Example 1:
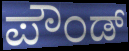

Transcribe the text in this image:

ಪೌಂಡ್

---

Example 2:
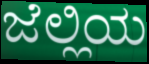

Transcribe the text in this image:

ಜೆಲ್ಲಿಯ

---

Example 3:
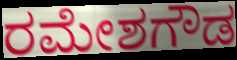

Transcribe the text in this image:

ರಮೇಶಗೌಡ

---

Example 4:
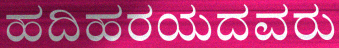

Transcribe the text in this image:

ಹದಿಹರಯದವರು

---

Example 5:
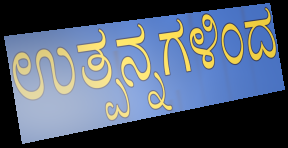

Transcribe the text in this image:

ಉತ್ಪನ್ನಗಳಿಂದ